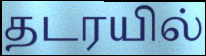
தடரயில்